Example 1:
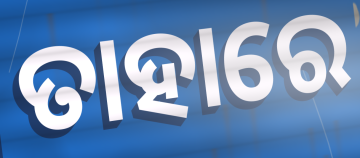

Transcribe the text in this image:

ତାହାରେ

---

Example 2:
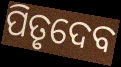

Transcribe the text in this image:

ପିତୃଦେବ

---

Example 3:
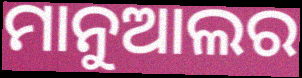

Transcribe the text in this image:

ମାନୁଆଲର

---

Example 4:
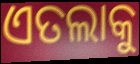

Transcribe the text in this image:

ଏତଲାକୁ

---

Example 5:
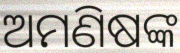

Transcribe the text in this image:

ଅମଣିଷଙ୍କ